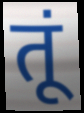
तूं